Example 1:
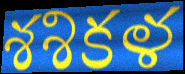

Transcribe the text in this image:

శశికళ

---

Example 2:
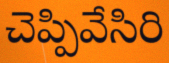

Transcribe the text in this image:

చెప్పివేసిరి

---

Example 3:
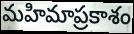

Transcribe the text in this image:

మహిమాప్రకాశం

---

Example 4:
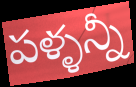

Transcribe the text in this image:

పళ్ళన్నీ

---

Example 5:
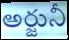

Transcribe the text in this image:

అర్జునీ